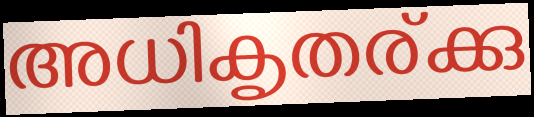
അധികൃതര്ക്കു